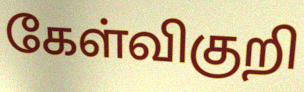
கேள்விகுறி